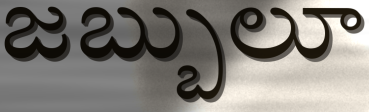
జబ్బులూ